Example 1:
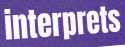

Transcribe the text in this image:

interprets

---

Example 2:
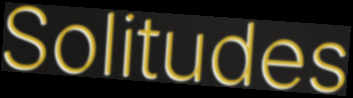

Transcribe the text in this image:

Solitudes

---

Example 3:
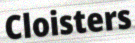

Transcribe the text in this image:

Cloisters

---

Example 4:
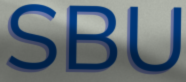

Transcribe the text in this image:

SBU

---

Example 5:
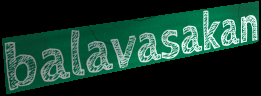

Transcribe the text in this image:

balavasakan